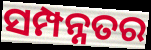
ସମ୍ପନ୍ନତର